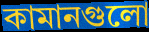
কামানগুলো